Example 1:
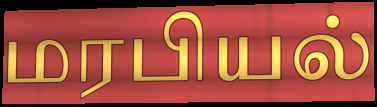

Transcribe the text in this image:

மரபியல்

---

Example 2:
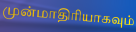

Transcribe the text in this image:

முன்மாதிரியாகவும்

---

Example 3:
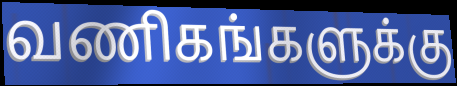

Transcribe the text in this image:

வணிகங்களுக்கு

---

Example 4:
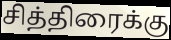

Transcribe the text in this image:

சித்திரைக்கு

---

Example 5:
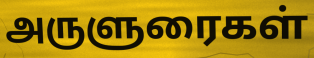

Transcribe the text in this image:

அருளுரைகள்